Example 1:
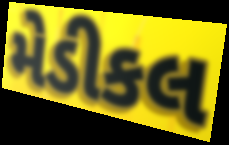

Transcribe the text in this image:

મેડીકલ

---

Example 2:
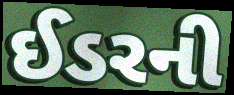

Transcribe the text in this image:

ઈડરની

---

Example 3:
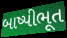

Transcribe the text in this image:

બાષ્પીભૂત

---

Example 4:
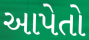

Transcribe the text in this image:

આપેતો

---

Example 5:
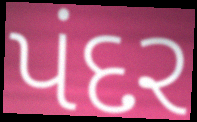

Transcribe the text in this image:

પંદર